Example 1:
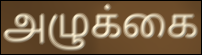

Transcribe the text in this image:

அழுக்கை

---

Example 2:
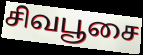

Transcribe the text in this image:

சிவபூசை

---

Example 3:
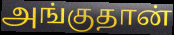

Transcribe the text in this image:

அங்குதான்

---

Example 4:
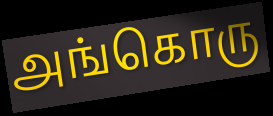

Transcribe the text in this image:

அங்கொரு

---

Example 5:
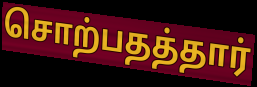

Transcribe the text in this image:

சொற்பதத்தார்